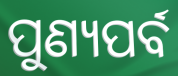
ପୁଣ୍ୟପର୍ବ